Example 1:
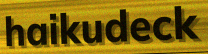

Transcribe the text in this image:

haikudeck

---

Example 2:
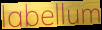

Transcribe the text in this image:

labellum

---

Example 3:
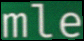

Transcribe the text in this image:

mle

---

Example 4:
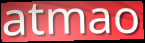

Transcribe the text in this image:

atmao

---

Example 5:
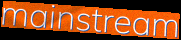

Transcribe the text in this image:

mainstream